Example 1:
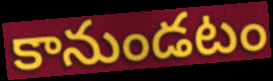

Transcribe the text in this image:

కానుండటం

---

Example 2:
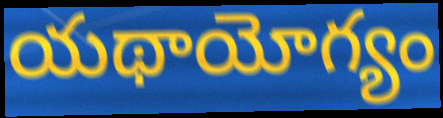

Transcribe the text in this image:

యథాయోగ్యం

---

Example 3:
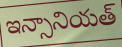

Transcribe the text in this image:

ఇన్సానియత్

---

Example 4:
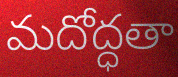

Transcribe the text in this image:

మదోద్ధతా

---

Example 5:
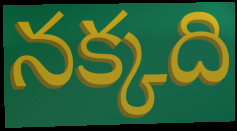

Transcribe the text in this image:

నక్కది